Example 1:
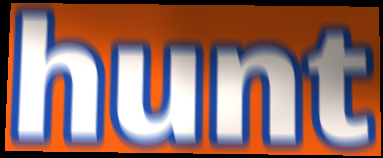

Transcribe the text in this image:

hunt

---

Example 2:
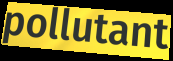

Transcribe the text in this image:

pollutant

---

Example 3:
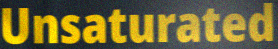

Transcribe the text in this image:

Unsaturated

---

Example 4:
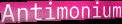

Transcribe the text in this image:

Antimonium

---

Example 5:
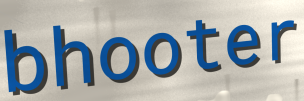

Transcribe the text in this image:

bhooter